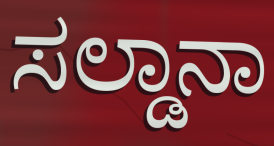
ಸಲ್ಡಾನಾ